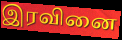
இரவினை